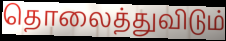
தொலைத்துவிடும்